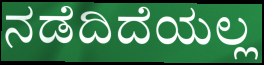
ನಡೆದಿದೆಯಲ್ಲ